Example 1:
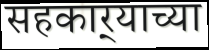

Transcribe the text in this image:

सहकार्याच्या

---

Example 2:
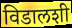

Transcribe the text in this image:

विडालशी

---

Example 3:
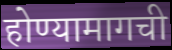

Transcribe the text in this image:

होण्यामागची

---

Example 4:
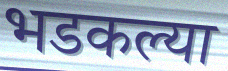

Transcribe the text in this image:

भडकल्या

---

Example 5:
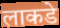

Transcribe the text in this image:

लाकडे